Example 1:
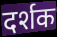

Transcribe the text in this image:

दर्शक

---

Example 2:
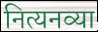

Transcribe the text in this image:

नित्यनव्या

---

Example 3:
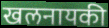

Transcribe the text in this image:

खलनायकी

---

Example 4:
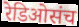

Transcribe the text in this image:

रेडिओसंच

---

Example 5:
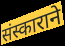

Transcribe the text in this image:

संस्काराने